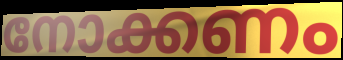
നോക്കണം